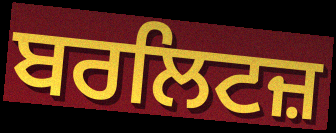
ਬਰਲਿਟਜ਼